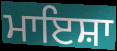
ਮਾਇਸ਼ਾ